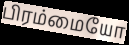
பிரம்மையோ